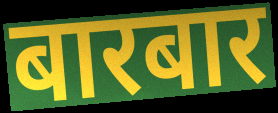
बारबार